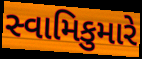
સ્વામિકુમારે